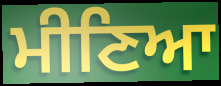
ਮੀਣਿਆ